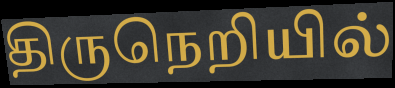
திருநெறியில்